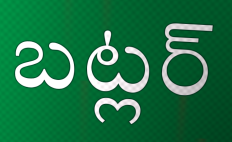
బట్లర్